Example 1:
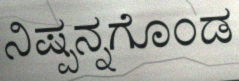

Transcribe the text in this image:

ನಿಷ್ಪನ್ನಗೊಂಡ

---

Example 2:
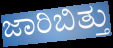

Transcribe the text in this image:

ಜಾರಿಬಿತ್ತು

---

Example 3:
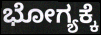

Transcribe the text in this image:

ಭೋಗ್ಯಕ್ಕೆ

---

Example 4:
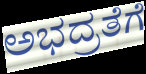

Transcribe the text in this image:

ಅಭದ್ರತೆಗೆ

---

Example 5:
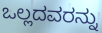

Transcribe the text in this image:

ಒಲ್ಲದವರನ್ನು